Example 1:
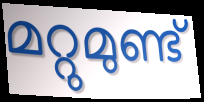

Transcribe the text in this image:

മറ്റുമുണ്ട്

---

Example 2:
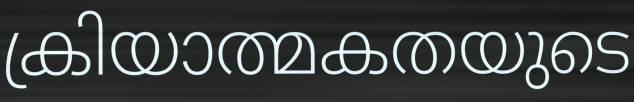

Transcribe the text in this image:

ക്രിയാത്മകതയുടെ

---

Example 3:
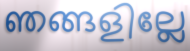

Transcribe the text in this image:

ഞങ്ങളില്ലേ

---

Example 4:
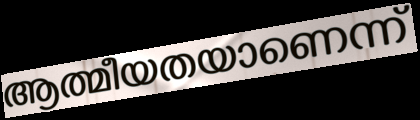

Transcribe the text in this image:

ആത്മീയതയാണെന്ന്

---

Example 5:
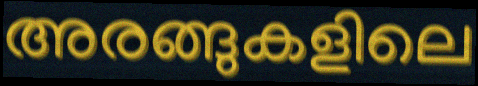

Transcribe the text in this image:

അരങ്ങുകളിലെ